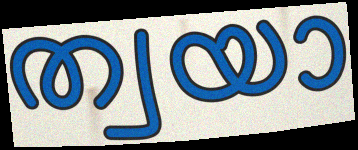
ത്വയാ